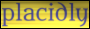
placidly